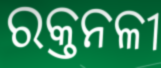
ରକ୍ତନଳୀ